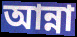
আন্না